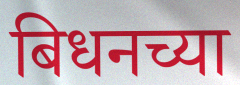
बिधनच्या